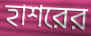
হাশরের